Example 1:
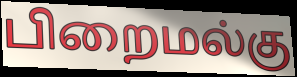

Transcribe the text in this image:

பிறைமல்கு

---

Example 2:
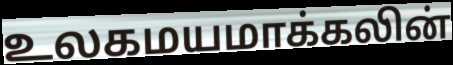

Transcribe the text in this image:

உலகமயமாக்கலின்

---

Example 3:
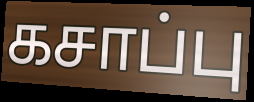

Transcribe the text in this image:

கசாப்பு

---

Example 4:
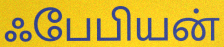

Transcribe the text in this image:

ஃபேபியன்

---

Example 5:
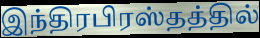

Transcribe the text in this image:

இந்திரபிரஸ்தத்தில்